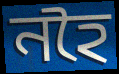
নহৈ